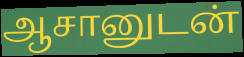
ஆசானுடன்